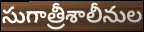
సుగాత్రీశాలీనుల